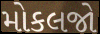
મોકલજો